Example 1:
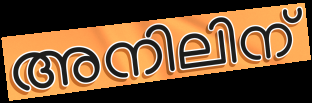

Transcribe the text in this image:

അനിലിന്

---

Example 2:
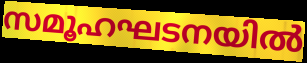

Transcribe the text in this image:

സമൂഹഘടനയിൽ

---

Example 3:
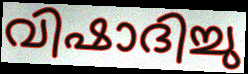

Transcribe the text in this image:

വിഷാദിച്ചു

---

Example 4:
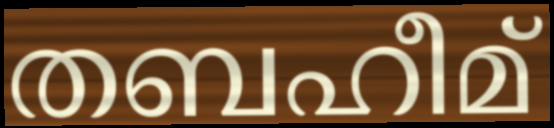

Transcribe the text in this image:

തബഹീമ്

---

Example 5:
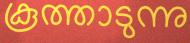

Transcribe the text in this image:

കൂത്താടുന്നു